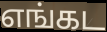
எங்கட